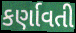
કર્ણાવતી